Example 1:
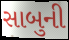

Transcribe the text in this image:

સાબુની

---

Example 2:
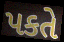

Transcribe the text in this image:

પકતે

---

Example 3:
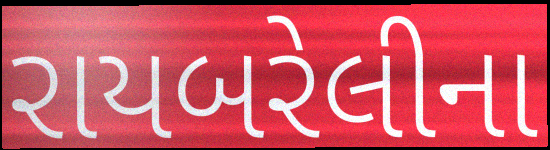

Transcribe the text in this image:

રાયબરેલીના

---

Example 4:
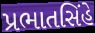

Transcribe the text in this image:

પ્રભાતસિંહે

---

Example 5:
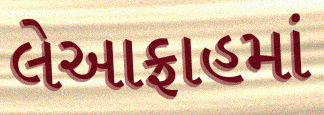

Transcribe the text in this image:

લેઆફ્રાહમાં